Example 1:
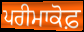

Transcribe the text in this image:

ਪਰੀਮਾਕੋਫ਼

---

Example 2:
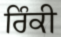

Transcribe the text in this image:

ਰਿੰਕੀ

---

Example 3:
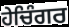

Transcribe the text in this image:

ਹੇਚਿੰਗਰ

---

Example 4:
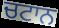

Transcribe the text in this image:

ਚਟਾਨ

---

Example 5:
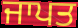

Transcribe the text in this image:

ਜਾਪਤ